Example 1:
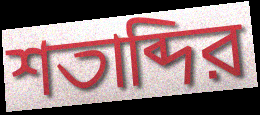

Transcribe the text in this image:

শতাব্দির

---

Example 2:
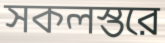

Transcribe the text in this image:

সকলস্তরে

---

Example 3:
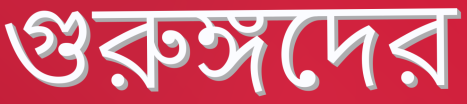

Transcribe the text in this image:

গুরুঙ্গদের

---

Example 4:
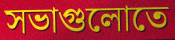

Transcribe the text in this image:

সভাগুলোতে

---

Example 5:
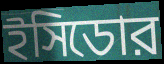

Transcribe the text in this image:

ইসিডোর